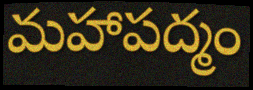
మహాపద్మం